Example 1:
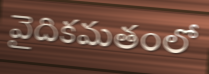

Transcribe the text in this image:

వైదికమతంలో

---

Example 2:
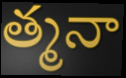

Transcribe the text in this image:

త్మనా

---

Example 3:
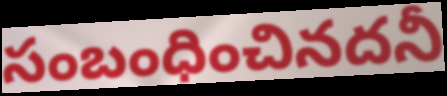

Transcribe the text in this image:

సంబంధించినదనీ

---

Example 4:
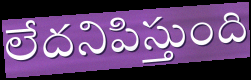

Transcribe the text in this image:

లేదనిపిస్తుంది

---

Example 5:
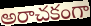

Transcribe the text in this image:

అరాచకంగా